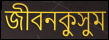
জীবনকুসুম